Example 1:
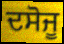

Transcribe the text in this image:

ਦਸੋਜੂ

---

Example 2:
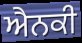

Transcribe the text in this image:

ਐਨਕੀ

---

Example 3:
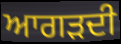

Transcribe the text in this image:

ਆਗੜਦੀ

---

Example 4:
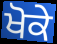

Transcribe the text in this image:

ਖੋਕੇ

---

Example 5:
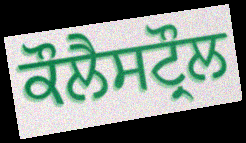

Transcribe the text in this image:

ਕੌਲੈਸਟ੍ਰੌਲ